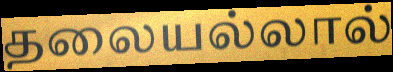
தலையல்லால்